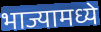
भाज्यामध्ये